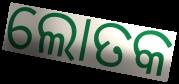
ଲୋତକ